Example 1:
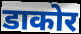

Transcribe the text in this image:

डाकोर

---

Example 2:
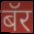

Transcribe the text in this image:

बॅर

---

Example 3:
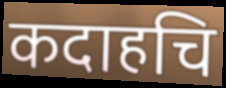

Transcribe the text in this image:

कदाहचि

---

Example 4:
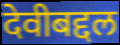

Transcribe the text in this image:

देवीबद्दल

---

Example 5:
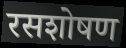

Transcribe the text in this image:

रसशोषण